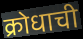
क्रोधाची